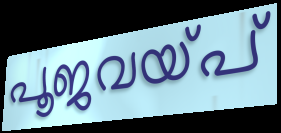
പൂജവയ്പ്